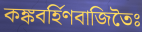
কঙ্কবর্হিণবাজিতৈঃ